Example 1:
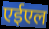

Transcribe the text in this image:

एईएल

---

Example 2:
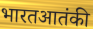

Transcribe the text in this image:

भारतआतंकी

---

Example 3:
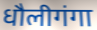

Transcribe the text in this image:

धौलीगंगा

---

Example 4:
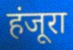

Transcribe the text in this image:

हंजूरा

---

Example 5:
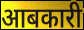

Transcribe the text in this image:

आबकारी